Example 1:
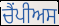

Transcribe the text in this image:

ਚੈਂਪੀਅਸ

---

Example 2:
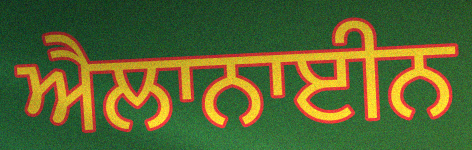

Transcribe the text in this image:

ਐਲਾਨਾਈਨ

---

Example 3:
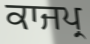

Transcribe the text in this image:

ਕਾਜਪ੍ਰ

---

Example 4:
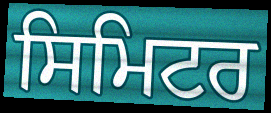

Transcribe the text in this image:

ਸਿਮਿਟਰ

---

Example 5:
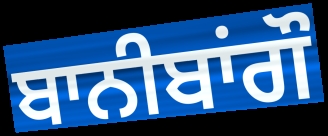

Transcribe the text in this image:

ਬਾਨੀਬਾਂਗੌ